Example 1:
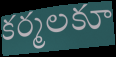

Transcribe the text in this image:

కర్మలకూ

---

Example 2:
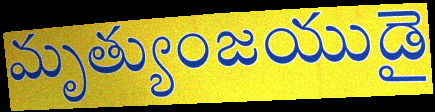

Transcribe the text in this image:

మృత్యుంజయుడై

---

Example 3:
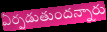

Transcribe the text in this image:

ఏర్పడుతుందన్నారు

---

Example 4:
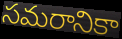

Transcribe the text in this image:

సమరానికా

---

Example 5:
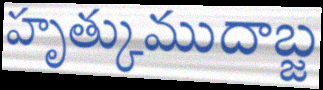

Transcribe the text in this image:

హృత్కుముదాబ్జ